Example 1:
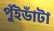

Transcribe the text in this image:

পুঁইডাঁটা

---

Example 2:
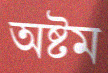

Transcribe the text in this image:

অষ্টম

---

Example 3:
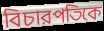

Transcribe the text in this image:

বিচারপতিকে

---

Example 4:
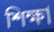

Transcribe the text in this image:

শিক্ষা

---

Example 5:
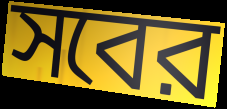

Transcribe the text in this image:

সবের